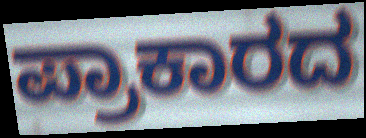
ಪ್ರಾಕಾರದ